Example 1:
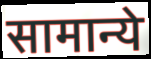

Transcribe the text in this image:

सामान्ये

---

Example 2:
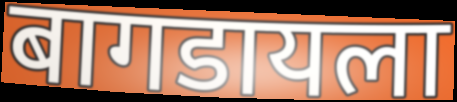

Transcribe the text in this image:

बागडायला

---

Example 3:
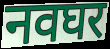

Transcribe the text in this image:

नवघर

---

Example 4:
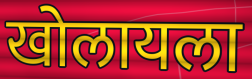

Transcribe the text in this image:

खोलायला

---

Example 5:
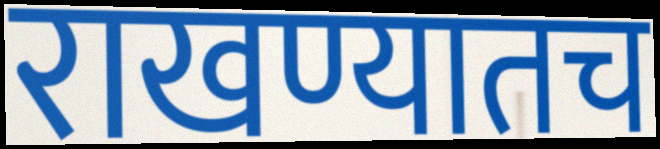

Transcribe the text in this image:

राखण्यातच